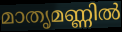
മാതൃമണ്ണിൽ